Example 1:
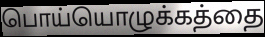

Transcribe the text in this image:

பொய்யொழுக்கத்தை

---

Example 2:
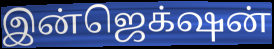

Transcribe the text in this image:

இன்ஜெக்‌ஷன்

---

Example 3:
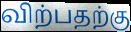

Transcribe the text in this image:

விற்பதற்கு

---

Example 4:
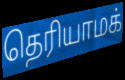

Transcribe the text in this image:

தெரியாமக்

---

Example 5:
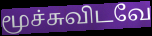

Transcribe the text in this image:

மூச்சுவிடவே